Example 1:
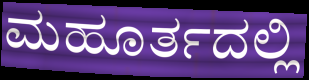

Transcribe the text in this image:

ಮಹೂರ್ತದಲ್ಲಿ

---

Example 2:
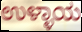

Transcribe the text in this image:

ಉಳ್ಳಾಯ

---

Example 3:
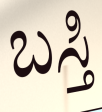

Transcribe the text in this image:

ಬಸ್ತಿ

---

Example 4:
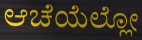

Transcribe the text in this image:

ಆಚೆಯೆಲ್ಲೋ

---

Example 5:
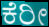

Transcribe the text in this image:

ಕೆರೀ